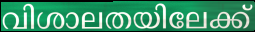
വിശാലതയിലേക്ക്